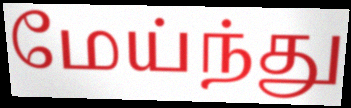
மேய்ந்து